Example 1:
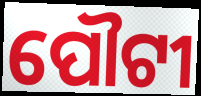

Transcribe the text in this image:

ପୌଟୀ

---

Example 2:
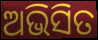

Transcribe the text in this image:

ଅଭିସିତ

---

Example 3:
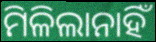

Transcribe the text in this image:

ମିଳିଲାନାହିଁ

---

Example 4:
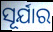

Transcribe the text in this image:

ସୂର୍ଯାର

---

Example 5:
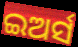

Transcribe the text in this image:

ଇଅର୍ସ